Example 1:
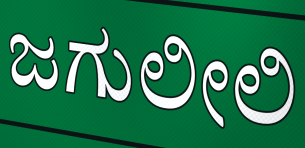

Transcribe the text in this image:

ಜಗುಲೀಲಿ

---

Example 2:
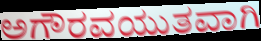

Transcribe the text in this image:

ಅಗೌರವಯುತವಾಗಿ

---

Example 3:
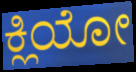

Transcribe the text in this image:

ಕ್ಲಿಯೋ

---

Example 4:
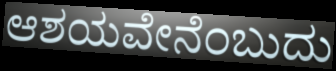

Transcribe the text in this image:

ಆಶಯವೇನೆಂಬುದು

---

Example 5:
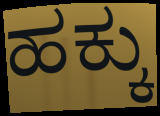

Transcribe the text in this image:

ಹಕ್ಕು